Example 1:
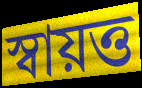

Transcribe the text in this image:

স্বায়ত্ত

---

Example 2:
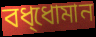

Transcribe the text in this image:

বধ্ধোমান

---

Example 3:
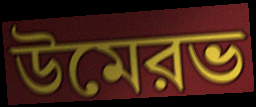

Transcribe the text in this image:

উমেরভ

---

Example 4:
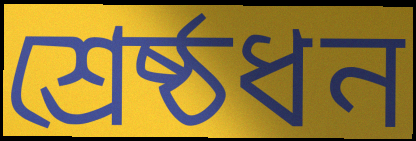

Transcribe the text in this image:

শ্রেষ্ঠধন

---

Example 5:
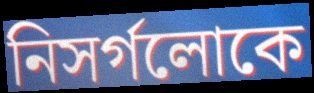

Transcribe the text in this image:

নিসর্গলোকে